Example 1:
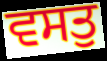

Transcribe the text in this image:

ਵਸਤੁ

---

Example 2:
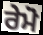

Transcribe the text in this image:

ਰੇਮੋ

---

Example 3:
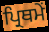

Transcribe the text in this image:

ਪ੍ਰਿਥਮੇਂ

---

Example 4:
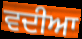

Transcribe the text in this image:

ਵਦੀਆ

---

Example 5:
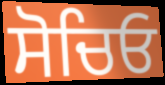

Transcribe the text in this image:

ਸੋਚਿਓ